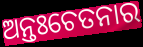
ଅନ୍ତଃଚେତନାର